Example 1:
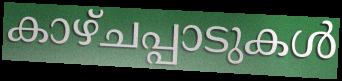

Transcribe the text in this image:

കാഴ്ചപ്പാടുകൾ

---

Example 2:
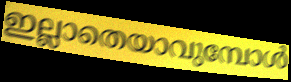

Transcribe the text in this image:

ഇല്ലാതെയാവുമ്പോൾ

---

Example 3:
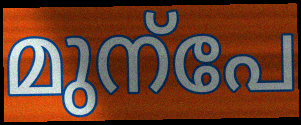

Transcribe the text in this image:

മുന്പേ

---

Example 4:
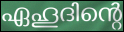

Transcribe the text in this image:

ഏഹൂദിന്റെ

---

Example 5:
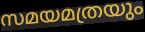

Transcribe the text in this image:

സമയമത്രയും